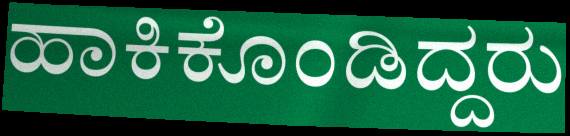
ಹಾಕಿಕೊಂಡಿದ್ದರು